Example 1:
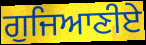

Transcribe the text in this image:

ਗੁਜਿਆਣੀਏ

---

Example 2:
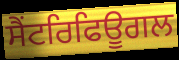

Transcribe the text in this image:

ਸੈਂਟਰਿਫਿਊਗਲ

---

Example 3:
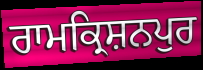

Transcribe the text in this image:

ਰਾਮਕ੍ਰਿਸ਼ਨਪੁਰ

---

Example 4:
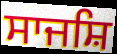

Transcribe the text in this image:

ਸਾਜਸ਼ਿ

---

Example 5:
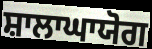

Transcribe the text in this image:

ਸ਼ਾਲਾਘਾਯੋਗ